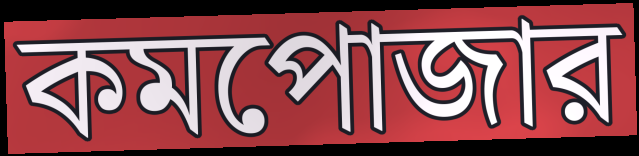
কমপোজার